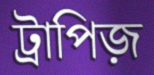
ট্রাপিজ়